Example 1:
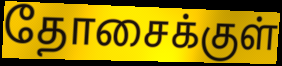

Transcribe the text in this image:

தோசைக்குள்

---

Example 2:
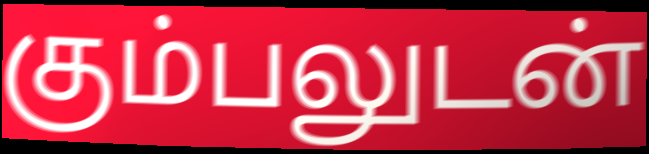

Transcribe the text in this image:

கும்பலுடன்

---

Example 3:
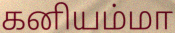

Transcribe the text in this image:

கனியம்மா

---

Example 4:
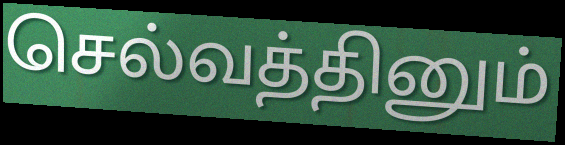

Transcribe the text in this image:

செல்வத்தினும்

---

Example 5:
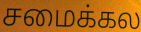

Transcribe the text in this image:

சமைக்கல